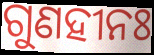
ଗୁଣହୀନଃ